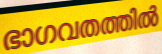
ഭാഗവതത്തിൽ